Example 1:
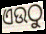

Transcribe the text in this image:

ଏଉଠୁ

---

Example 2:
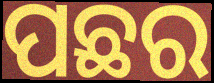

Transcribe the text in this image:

ପଛର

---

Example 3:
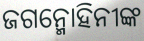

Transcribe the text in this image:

ଜଗନ୍ମୋହିନୀଙ୍କ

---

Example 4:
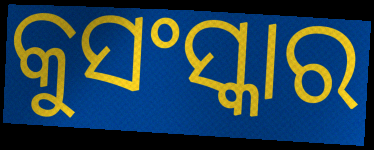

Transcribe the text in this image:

କୁସଂସ୍କାର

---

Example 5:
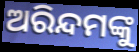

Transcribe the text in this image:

ଅରିନ୍ଦମଙ୍କୁ